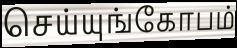
செய்யுங்கோபம்